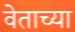
वेताच्या